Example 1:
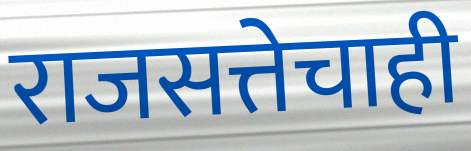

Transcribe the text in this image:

राजसत्तेचाही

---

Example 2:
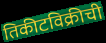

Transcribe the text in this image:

तिकीटविक्रीची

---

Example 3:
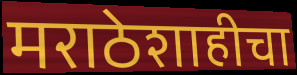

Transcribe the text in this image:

मराठेशाहीचा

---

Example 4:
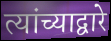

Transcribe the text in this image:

त्यांच्याद्वारे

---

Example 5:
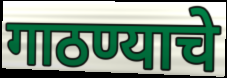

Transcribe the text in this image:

गाठण्याचे